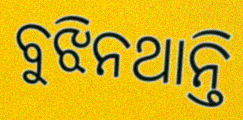
ବୁଝିନଥାନ୍ତି